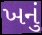
ખનું